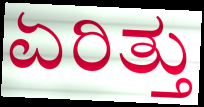
ಏರಿತ್ತು